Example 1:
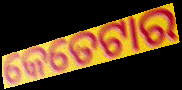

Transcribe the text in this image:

କେତେଟାର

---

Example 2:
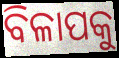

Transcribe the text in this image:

ବିଳାପକୁ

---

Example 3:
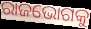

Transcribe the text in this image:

ରାଜଭୋଗକୁ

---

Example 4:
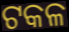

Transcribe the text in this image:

ଟକଳ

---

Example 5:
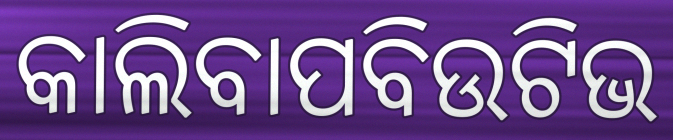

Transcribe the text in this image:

କାଲିବାପବିଉଟିଭ